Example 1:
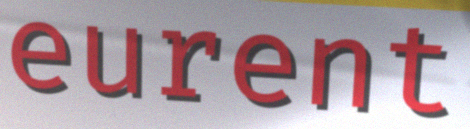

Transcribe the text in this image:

eurent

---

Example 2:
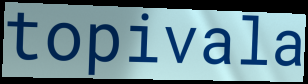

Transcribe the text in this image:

topivala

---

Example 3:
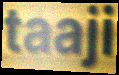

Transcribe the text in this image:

taaji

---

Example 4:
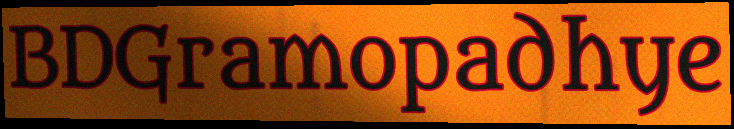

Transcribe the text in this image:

BDGramopadhye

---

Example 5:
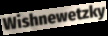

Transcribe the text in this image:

Wishnewetzky